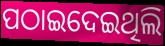
ପଠାଇଦେଇଥିଲି